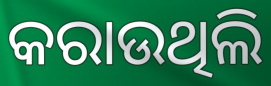
କରାଉଥିଲି